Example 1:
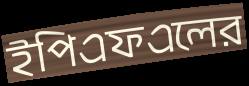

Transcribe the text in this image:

ইপিএফএলের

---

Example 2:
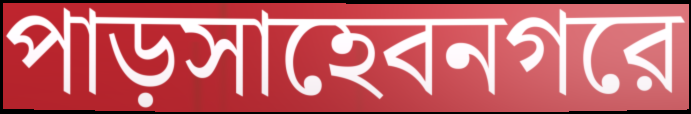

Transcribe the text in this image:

পাড়সাহেবনগরে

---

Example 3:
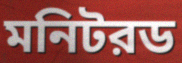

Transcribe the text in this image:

মনিটরড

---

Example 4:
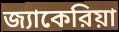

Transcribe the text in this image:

জ্যাকেরিয়া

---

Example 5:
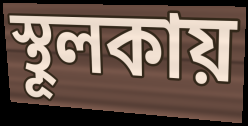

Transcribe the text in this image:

স্থূলকায়